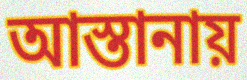
আস্তানায়